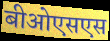
बीओएसएस